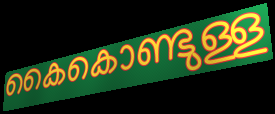
കൈകൊണ്ടുള്ള